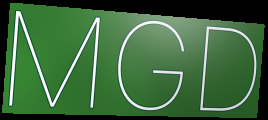
MGD